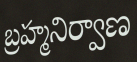
బ్రహ్మనిర్వాణ